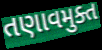
તણાવમુક્ત